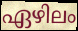
ഏഴിലം